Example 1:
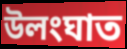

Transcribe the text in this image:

উলংঘাত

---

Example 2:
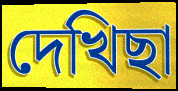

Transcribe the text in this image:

দেখিছা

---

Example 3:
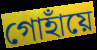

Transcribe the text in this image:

গোহাঁয়ে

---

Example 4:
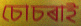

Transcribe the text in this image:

চোচৰাই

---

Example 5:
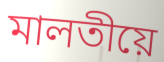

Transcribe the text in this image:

মালতীয়ে